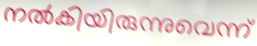
നൽകിയിരുന്നുവെന്ന്